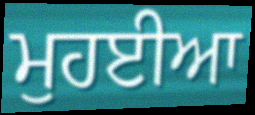
ਮੁਹਈਆ